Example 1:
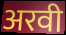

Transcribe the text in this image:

अरवी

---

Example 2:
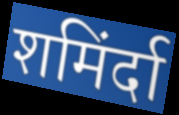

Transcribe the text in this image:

शमिंर्दा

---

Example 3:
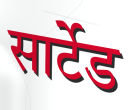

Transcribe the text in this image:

सार्टेड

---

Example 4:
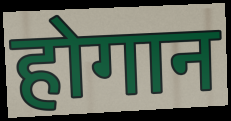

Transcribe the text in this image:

होगान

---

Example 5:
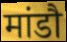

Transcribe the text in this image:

मांडौ